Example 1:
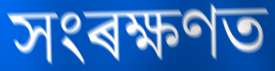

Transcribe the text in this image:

সংৰক্ষণত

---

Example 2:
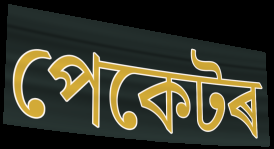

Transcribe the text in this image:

পেকেটৰ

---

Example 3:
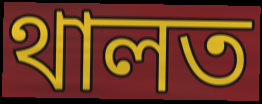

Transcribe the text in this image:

থালত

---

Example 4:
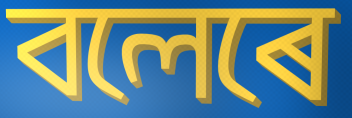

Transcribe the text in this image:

বলেৰে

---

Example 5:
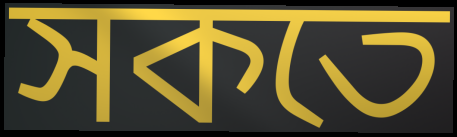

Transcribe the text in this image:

সকতে